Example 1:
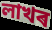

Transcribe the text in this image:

লাখৰ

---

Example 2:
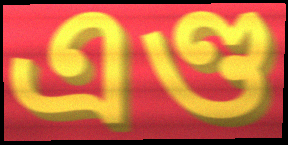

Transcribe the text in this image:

এণ্ড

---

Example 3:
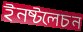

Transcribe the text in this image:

ইনষ্টলেচন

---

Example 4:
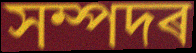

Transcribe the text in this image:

সম্পদৰ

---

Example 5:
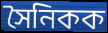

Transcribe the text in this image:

সৈনিকক